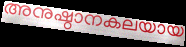
അനുഷ്ഠാനകലയായ